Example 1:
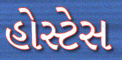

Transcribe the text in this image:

હોસ્ટેસ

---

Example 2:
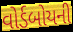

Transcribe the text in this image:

વોર્ડબોયની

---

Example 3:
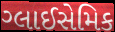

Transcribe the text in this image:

ગ્લાઈસેમિક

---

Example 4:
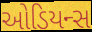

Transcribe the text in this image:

ઓડિયન્સ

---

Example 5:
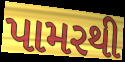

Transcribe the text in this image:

પામરથી